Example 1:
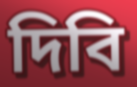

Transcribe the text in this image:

দিবি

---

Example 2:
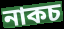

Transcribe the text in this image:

নাকচ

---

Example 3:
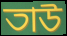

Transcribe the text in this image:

তাউ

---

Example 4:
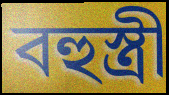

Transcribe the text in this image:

বহুস্ত্ৰী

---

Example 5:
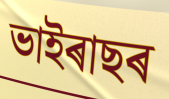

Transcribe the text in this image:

ভাইৰাছৰ